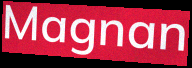
Magnan